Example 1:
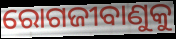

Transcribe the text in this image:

ରୋଗଜୀବାଣୁକୁ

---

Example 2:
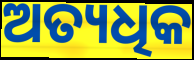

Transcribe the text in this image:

ଅତ୍ୟଧିକ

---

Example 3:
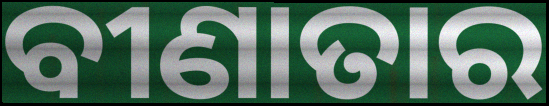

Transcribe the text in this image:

ବୀଣାତାର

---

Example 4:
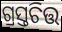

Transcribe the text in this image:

ଗ୍ରସ୍ତଚିତ୍ତ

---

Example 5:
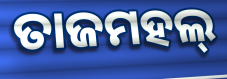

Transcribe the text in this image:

ତାଜମହଲ୍